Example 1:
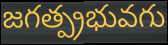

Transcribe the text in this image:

జగత్ప్రభువగు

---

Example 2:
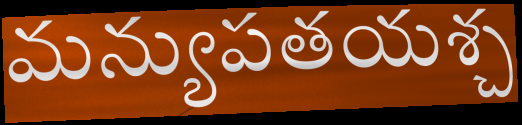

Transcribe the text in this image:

మన్యుపతయశ్చ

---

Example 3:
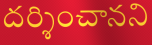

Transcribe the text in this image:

దర్శించానని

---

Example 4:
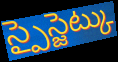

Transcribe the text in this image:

స్పైస్జెట్కు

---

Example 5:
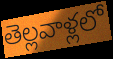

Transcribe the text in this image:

తెల్లవాళ్లలో